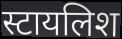
स्टायलिश